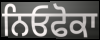
ਨਿਓਫੋਕਾ